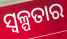
ସ୍ଵଳ୍ପତାର